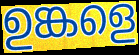
ഉങ്കളെ